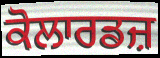
ਕੋਲਾਰਡਜ਼